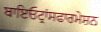
ਬਾਇਓਟ੍ਰਾਂਸਫਾਰਮੇਸ਼ਨ